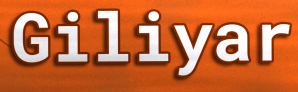
Giliyar